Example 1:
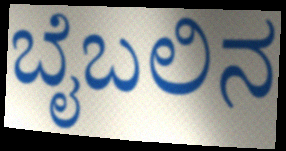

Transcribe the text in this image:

ಬೈಬಲಿನ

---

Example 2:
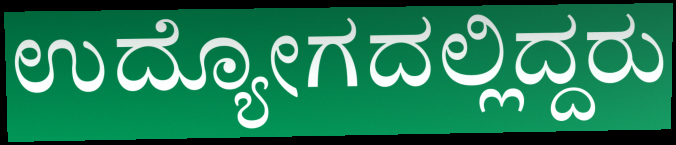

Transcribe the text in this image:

ಉದ್ಯೋಗದಲ್ಲಿದ್ದರು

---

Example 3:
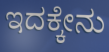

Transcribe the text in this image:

ಇದಕ್ಕೇನು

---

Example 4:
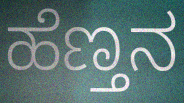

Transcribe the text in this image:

ಹೆಣ್ತನ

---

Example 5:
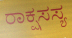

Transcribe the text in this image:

ರಾಕ್ಷಸಸ್ಯ